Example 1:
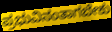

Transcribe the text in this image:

ಪ್ರಭುವಿನಂತಾಗಬೇಕು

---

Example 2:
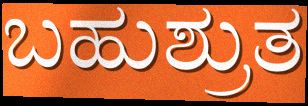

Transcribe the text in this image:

ಬಹುಶ್ರುತ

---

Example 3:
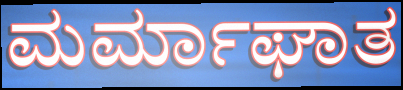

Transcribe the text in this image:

ಮರ್ಮಾಘಾತ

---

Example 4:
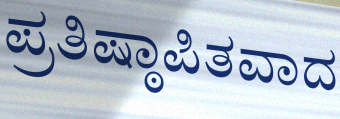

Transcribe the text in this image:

ಪ್ರತಿಷ್ಠಾಪಿತವಾದ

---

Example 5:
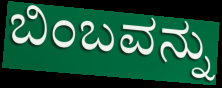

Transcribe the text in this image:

ಬಿಂಬವನ್ನು